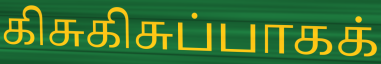
கிசுகிசுப்பாகக்